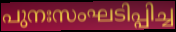
പുനഃസംഘടിപ്പിച്ച